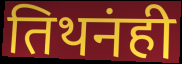
तिथनंही